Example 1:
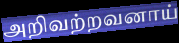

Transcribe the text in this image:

அறிவற்றவனாய்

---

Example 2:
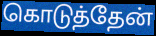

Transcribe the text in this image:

கொடுத்தேன்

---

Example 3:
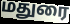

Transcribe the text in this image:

மதுரை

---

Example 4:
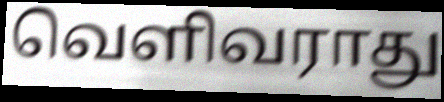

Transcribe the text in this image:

வெளிவராது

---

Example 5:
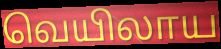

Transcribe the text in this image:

வெயிலாய